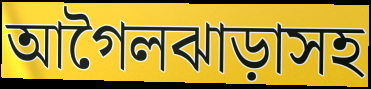
আগৈলঝাড়াসহ